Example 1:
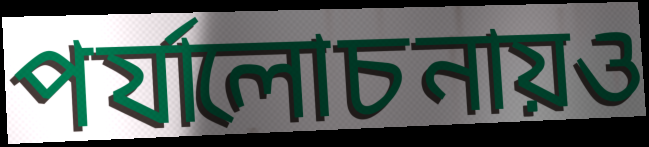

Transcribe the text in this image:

পর্যালোচনায়ও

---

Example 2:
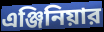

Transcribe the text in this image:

এঞ্জিনিয়ার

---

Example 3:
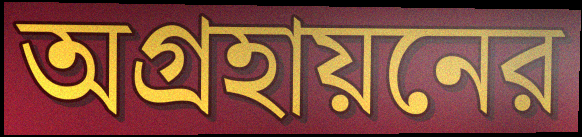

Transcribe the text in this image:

অগ্রহায়নের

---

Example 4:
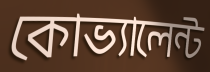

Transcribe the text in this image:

কোভ্যালেন্ট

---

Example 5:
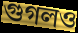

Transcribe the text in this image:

গুগলও